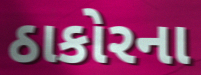
ઠાકોરના